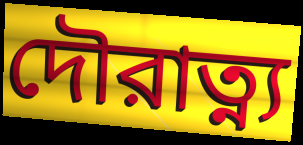
দৌরাত্ন্য